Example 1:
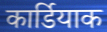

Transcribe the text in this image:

कार्डियाक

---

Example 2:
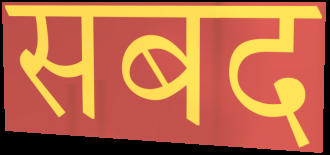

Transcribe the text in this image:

सबद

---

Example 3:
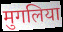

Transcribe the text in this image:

मुगलिया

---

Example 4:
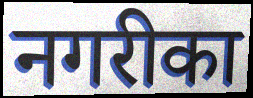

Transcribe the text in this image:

नगरीका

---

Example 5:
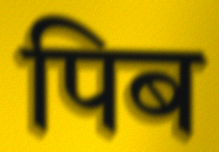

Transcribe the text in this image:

पिब